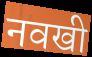
नवखी